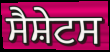
ਸੈਸ਼ੇਟਸ